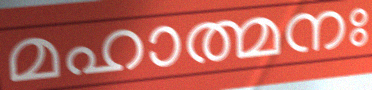
മഹാത്മനഃ